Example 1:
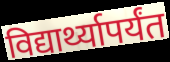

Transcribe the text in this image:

विद्यार्थ्यापर्यंत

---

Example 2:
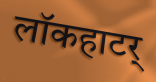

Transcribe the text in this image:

लॉकहाटर्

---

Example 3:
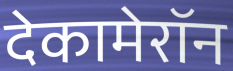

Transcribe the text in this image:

देकामेरॉन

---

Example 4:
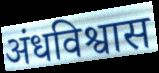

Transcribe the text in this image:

अंधविश्वास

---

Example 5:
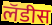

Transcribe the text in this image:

लॅडीस